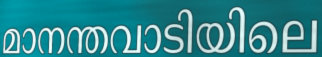
മാനന്തവാടിയിലെ